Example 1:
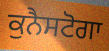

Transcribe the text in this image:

ਕੁਨੈਸਟੋਗਾ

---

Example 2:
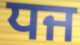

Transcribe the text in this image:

ਧਜ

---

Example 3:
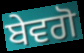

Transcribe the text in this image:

ਬੇਵਗੋ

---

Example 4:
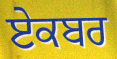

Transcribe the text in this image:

ਏਕਬਰ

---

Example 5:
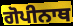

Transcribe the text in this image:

ਗੋਪੀਨਾਥ